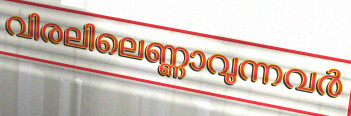
വിരലിലെണ്ണാവുന്നവർ